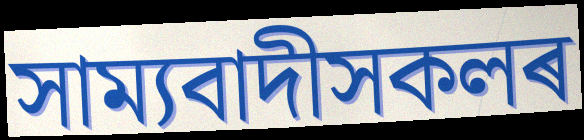
সাম্যবাদীসকলৰ